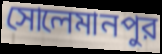
সোলেমানপুর